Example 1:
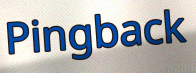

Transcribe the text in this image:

Pingback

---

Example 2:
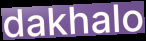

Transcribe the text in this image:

dakhalo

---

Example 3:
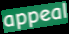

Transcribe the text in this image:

appeal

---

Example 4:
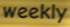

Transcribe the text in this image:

weekly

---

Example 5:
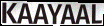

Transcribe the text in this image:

KAAYAAL